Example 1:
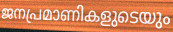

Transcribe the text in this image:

ജനപ്രമാണികളുടെയും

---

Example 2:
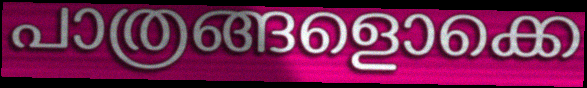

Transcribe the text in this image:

പാത്രങ്ങളൊക്കെ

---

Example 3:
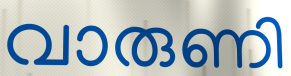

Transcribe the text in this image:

വാരുണി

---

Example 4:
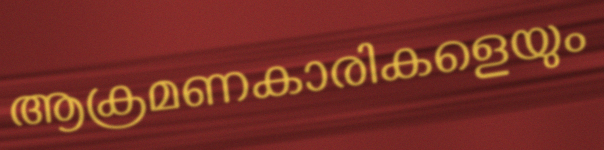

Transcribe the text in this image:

ആക്രമണകാരികളെയും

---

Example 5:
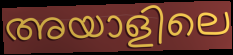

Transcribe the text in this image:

അയാളിലെ